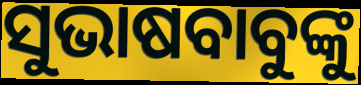
ସୁଭାଷବାବୁଙ୍କୁ